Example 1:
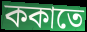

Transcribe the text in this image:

ককাতে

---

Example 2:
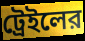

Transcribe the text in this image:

ট্রেইলের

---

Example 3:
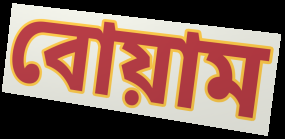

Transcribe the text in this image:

বোয়াম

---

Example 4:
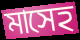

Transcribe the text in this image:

মাসেহ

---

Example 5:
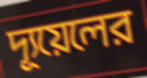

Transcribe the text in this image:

দ্যূয়েলের